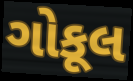
ગોકૂલ